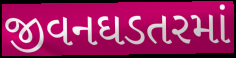
જીવનઘડતરમાં